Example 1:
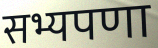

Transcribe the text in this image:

सभ्यपणा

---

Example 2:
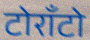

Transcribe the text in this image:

टोरॉंटो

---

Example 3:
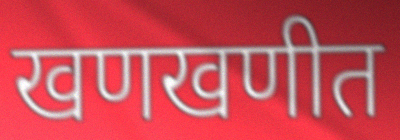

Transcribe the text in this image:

खणखणीत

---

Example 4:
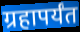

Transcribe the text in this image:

ग्रहापर्यंत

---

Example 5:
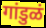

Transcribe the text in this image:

गांडुळं